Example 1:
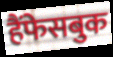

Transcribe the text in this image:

हैंफेसबुक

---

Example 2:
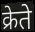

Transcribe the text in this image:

क्रेते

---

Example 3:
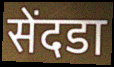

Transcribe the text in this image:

सेंदडा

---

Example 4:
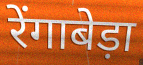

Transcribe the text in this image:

रेंगाबेड़ा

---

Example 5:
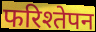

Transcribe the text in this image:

फरिश्तेपन